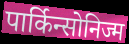
पार्किन्सोनिज्म